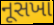
નૂસખા